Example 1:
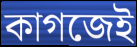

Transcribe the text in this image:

কাগজেই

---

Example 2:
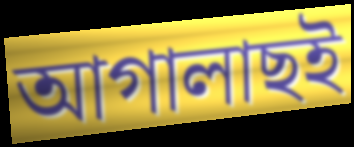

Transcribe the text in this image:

আগালাছই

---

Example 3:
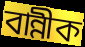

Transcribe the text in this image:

বান্নীক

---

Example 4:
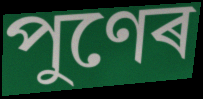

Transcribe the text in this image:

পুণেৰ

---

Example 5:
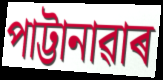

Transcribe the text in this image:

পাট্টানাৱাৰ